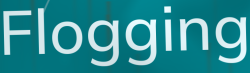
Flogging